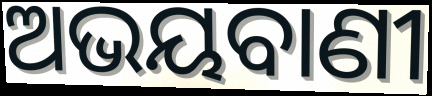
ଅଭୟବାଣୀ